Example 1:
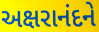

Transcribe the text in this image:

અક્ષરાનંદને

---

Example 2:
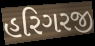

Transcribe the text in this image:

હરિગરજી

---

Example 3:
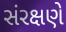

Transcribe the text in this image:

સંરક્ષણે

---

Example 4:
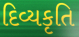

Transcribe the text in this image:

દિવ્યકૃતિ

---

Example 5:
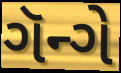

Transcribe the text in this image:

ગૅન્ગે